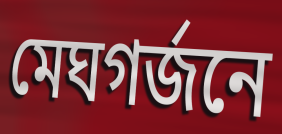
মেঘগর্জনে